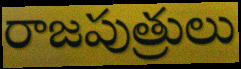
రాజపుత్రులు